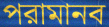
পরামানব